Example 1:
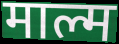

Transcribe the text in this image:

माल्म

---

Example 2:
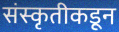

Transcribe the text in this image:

संस्कृतीकडून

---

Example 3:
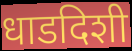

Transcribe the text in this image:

धाडदिशी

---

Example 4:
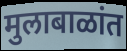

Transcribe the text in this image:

मुलाबाळांत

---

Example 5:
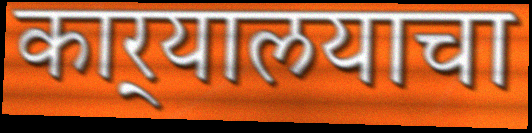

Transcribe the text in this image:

कार्यालयाचा